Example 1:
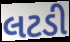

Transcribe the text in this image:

લટડી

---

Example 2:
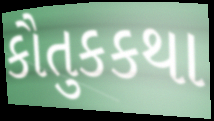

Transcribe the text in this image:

કૌતુકકથા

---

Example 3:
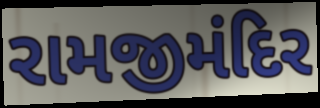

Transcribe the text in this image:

રામજીમંદિર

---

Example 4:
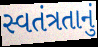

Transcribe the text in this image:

સ્વતંત્રતાનું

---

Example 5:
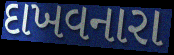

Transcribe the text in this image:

દાખવનારા